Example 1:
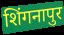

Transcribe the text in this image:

शिंगनापुर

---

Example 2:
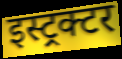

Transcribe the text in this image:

इस्ट्रक्टर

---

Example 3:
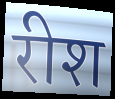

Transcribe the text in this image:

रीश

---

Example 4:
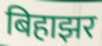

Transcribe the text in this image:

बिहाझर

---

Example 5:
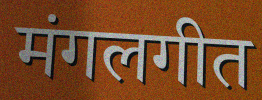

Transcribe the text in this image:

मंगलगीत